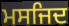
ਮਸਜਿਦ